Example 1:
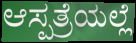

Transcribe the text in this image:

ಆಸ್ಪತ್ರೆಯಲ್ಲೆ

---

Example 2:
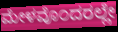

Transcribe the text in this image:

ಮೇಳವೊಂದರಲ್ಲೇ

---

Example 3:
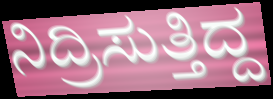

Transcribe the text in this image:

ನಿದ್ರಿಸುತ್ತಿದ್ದ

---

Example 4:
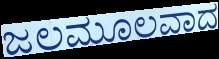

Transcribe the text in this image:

ಜಲಮೂಲವಾದ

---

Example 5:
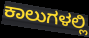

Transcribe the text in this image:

ಕಾಲುಗಳಲ್ಲಿ